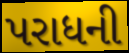
પરાધની